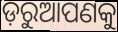
ଡ଼ରୁଆପଣକୁ